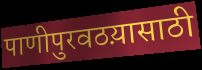
पाणीपुरवठय़ासाठी